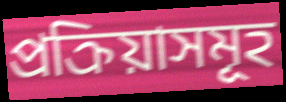
প্ৰক্ৰিয়াসমূহ